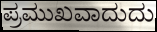
ಪ್ರಮುಖವಾದುದು